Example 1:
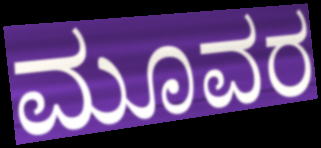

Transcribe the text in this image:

ಮೂವರ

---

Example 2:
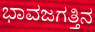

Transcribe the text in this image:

ಭಾವಜಗತ್ತಿನ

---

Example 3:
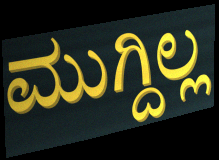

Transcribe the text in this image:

ಮುಗ್ದಿಲ್ಲ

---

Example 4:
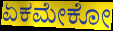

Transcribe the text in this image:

ಏಕಮೇಕೋ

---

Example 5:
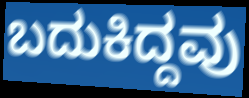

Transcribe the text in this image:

ಬದುಕಿದ್ದವು